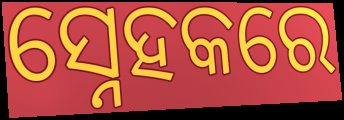
ସ୍ନେହକରେ